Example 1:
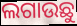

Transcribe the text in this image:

ଲଗାଉଛୁ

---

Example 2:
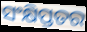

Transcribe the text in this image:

ସଂକ୍ଷିପ୍ତତର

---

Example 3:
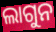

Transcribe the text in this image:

ଲାଗୁନ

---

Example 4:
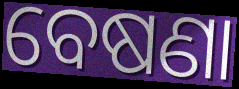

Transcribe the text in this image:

ବେଷଣା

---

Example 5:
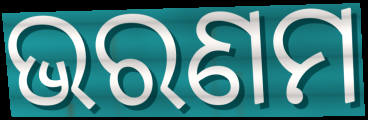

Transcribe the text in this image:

ଭରଣମ